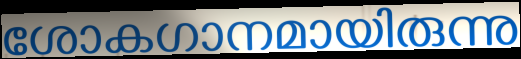
ശോകഗാനമായിരുന്നു